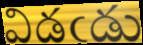
విడఁడు